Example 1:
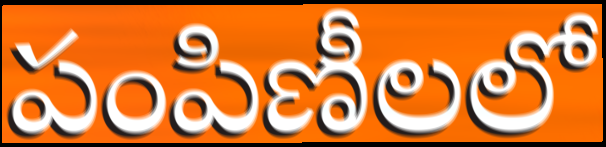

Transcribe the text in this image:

పంపిణీలలో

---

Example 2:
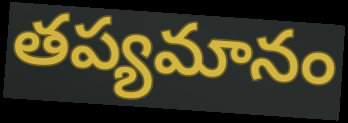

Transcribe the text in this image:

తప్యమానం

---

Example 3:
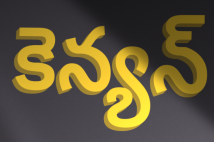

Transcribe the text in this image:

కెన్యన్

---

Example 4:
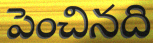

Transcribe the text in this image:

పెంచినది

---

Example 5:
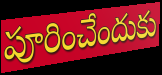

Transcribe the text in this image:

పూరించేందుకు